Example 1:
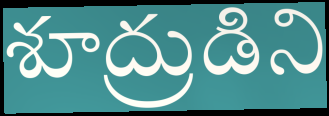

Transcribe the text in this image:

శూద్రుడిని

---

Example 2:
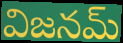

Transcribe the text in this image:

విజనమ్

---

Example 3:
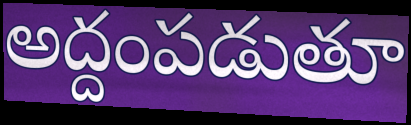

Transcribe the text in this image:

అద్దంపడుతూ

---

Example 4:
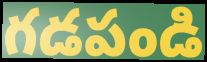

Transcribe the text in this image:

గడపండి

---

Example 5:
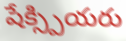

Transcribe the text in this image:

షేక్స్పియరు